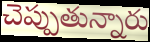
చెప్పుతున్నారు